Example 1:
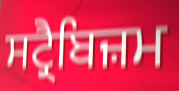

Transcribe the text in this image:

ਸਟ੍ਰੈਬਿਜ਼ਮ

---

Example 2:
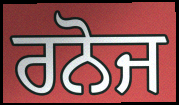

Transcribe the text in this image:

ਰਨੋਜ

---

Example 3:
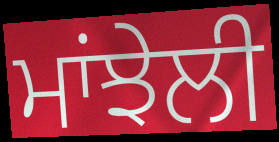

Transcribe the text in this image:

ਮਾਂਝੇਲੀ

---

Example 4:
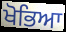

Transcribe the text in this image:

ਖੋਭਿਆ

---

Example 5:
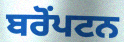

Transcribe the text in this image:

ਬਰੋਂਪਟਨ